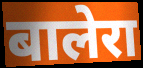
बालेरा